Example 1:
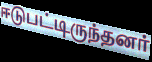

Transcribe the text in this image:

ஈடுபட்டிருந்தனர்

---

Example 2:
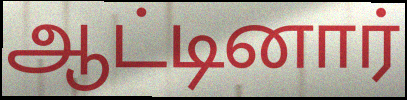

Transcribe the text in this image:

ஆட்டினார்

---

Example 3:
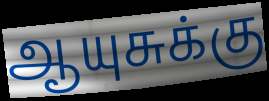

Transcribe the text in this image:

ஆயுசுக்கு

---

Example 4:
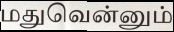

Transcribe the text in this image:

மதுவென்னும்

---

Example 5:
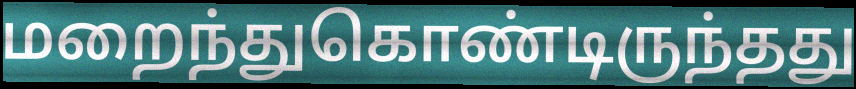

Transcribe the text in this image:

மறைந்துகொண்டிருந்தது